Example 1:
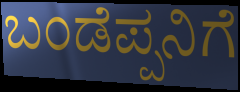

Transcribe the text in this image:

ಬಂಡೆಪ್ಪನಿಗೆ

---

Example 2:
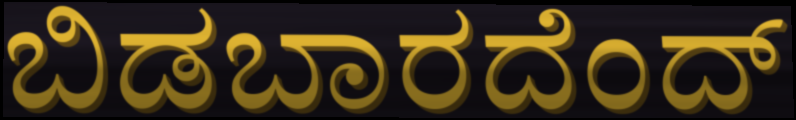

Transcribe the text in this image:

ಬಿಡಬಾರದೆಂದ್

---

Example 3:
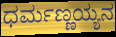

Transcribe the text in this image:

ಧರ್ಮಣ್ಣಯ್ಯನ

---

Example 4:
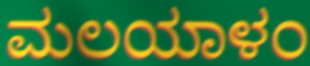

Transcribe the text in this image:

ಮಲಯಾಳಂ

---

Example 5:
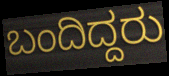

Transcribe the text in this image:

ಬಂದಿದ್ದರು